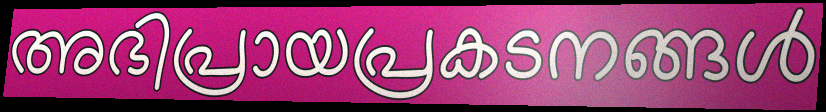
അഭിപ്രായപ്രകടനങ്ങൾ